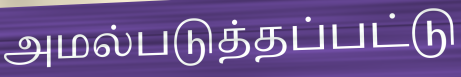
அமல்படுத்தப்பட்டு